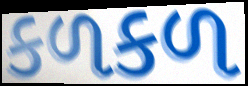
કળકળ